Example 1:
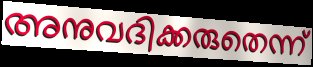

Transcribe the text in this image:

അനുവദിക്കരുതെന്ന്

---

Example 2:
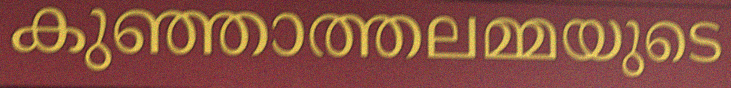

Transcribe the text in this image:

കുഞ്ഞാത്തലമ്മയുടെ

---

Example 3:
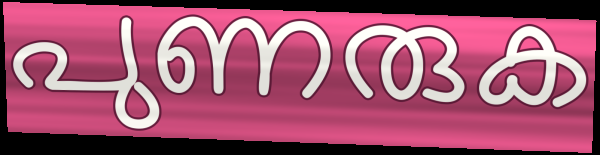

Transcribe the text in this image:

പുണരുക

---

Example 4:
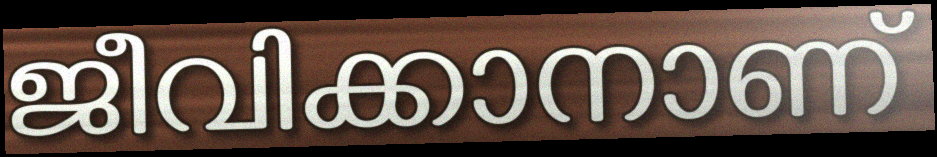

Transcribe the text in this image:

ജീവിക്കാനാണ്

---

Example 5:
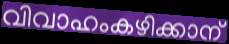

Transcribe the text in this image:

വിവാഹംകഴിക്കാന്